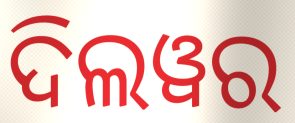
ଦିଲୱର